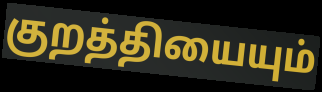
குறத்தியையும்